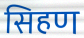
सिहण